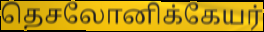
தெசலோனிக்கேயர்